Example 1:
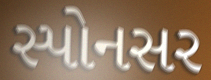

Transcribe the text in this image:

સ્પોનસર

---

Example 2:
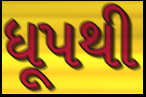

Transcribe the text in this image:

ધૂપથી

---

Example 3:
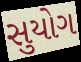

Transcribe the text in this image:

સુયોગ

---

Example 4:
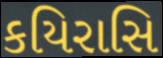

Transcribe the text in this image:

કયિરાસિ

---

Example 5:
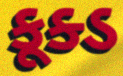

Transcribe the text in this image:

કૂક્ડ